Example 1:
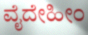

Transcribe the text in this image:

ವೈದೇಹೀಂ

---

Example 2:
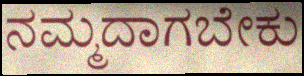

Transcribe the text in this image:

ನಮ್ಮದಾಗಬೇಕು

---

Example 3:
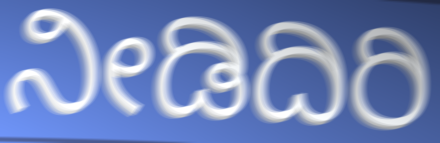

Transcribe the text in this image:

ನೀಡಿದಿರಿ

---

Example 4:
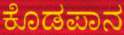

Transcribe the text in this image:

ಕೊಡಪಾನ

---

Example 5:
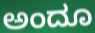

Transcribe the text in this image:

ಅಂದೂ